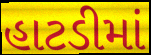
હાટડીમાં